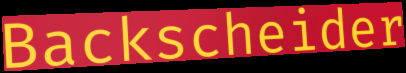
Backscheider